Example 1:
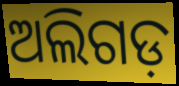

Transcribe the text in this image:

ଅଲିଗଡ଼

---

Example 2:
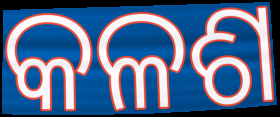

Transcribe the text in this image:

କଳଶ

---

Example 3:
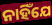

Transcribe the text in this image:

ନାହିଁଯେ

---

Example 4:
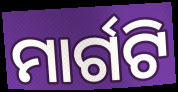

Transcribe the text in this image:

ମାର୍ଗଟି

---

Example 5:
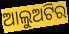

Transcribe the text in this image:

ଆଲୁଅଟିର